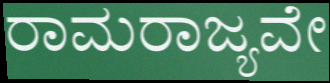
ರಾಮರಾಜ್ಯವೇ